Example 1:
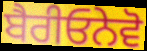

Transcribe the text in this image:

ਬੈਰੀਓਨੇਵੋ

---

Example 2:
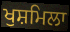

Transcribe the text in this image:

ਖੁਸ਼ਮਿਲਾ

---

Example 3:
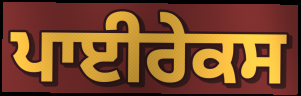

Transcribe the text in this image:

ਪਾਈਰੇਕਸ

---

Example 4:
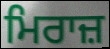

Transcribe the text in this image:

ਮਿਰਾਜ਼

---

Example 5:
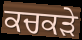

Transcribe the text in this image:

ਕਚਕੜੇ